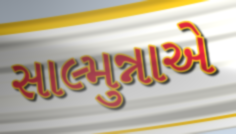
સાલ્મુન્નાએ